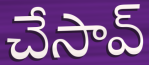
చేసావ్